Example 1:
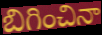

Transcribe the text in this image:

బిగించినా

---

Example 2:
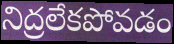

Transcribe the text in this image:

నిద్రలేకపోవడం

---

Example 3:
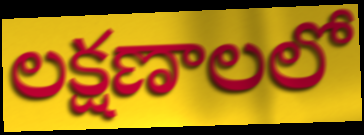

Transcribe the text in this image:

లక్షణాలలో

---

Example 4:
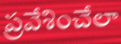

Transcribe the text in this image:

ప్రవేశించేలా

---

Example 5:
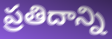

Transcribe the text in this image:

ప్రతిదాన్ని